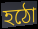
হঠো